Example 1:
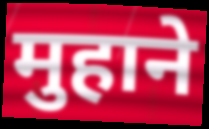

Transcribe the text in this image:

मुहाने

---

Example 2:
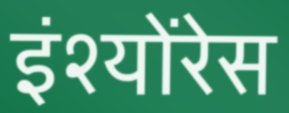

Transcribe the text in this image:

इंश्योंरेस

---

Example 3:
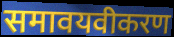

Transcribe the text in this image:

समावयवीकरण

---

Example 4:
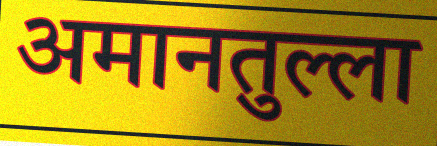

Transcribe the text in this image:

अमानतुल्ला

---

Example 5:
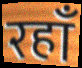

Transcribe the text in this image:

रहाँ